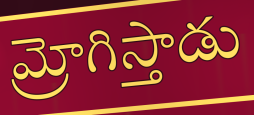
మ్రోగిస్తాడు